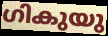
ഗികുയു